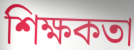
শিক্ষকতা